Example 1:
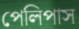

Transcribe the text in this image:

পেলিপাস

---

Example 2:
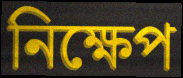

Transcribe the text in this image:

নিক্ষেপ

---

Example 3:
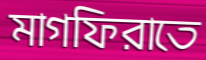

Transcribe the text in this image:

মাগফিরাতে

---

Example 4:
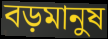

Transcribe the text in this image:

বড়মানুষ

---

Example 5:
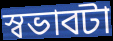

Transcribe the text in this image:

স্বভাবটা